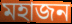
মহাজন